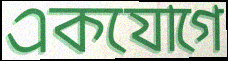
একযোগে